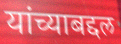
यांच्याबद्दल